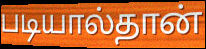
படியால்தான்